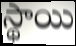
స్థాయి